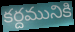
కర్దమునికి